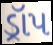
ડ્રૉપ